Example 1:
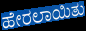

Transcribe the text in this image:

ಹೇರಲಾಯಿತು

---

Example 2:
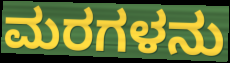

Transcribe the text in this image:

ಮರಗಳನು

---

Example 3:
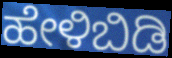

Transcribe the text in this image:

ಹೇಳಿಬಿಡಿ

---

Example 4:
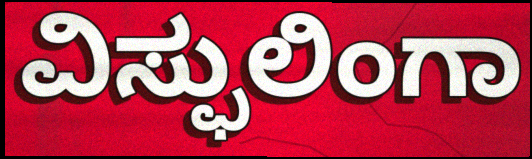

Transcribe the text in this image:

ವಿಸ್ಫುಲಿಂಗಾ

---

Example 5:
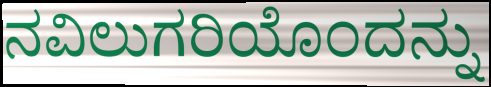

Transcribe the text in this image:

ನವಿಲುಗರಿಯೊಂದನ್ನು